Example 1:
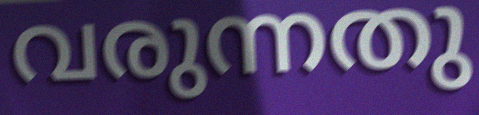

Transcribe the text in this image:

വരുന്നതു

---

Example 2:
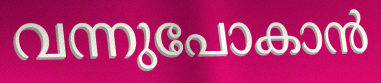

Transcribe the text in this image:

വന്നുപോകാൻ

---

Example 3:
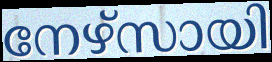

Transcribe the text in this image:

നേഴ്സായി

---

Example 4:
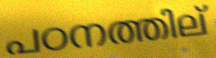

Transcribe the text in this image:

പഠനത്തില്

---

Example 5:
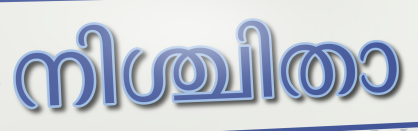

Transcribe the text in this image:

നിശ്ചിതാ